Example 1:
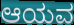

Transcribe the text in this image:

ಆಯವ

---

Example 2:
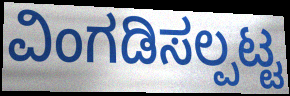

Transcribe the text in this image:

ವಿಂಗಡಿಸಲ್ಪಟ್ಟ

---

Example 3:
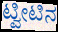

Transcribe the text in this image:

ಟ್ವೀಟಿನ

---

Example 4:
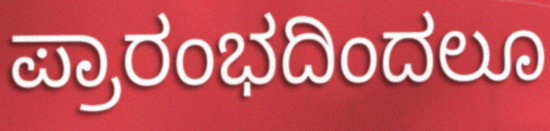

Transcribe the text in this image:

ಪ್ರಾರಂಭದಿಂದಲೂ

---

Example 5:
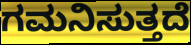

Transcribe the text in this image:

ಗಮನಿಸುತ್ತದೆ